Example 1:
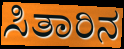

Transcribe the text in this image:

ಸಿತಾರಿನ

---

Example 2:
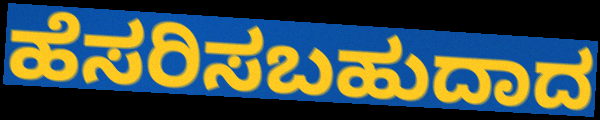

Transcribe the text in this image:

ಹೆಸರಿಸಬಹುದಾದ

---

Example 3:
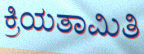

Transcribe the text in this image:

ಕ್ರಿಯತಾಮಿತಿ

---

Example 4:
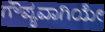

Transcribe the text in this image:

ಗೌಪ್ಯವಾಗಿಯೇ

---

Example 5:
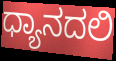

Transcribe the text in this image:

ಧ್ಯಾನದಲಿ